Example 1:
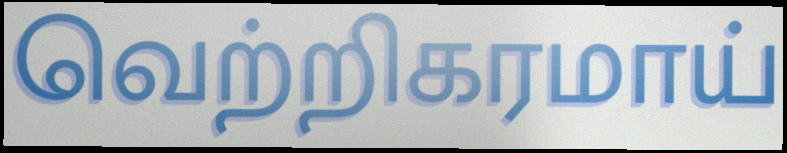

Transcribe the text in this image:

வெற்றிகரமாய்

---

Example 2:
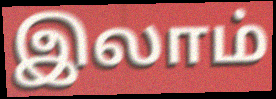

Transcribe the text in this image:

இலாம்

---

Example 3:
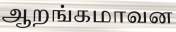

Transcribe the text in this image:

ஆறங்கமாவன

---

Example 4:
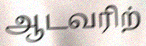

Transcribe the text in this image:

ஆடவரிற்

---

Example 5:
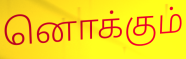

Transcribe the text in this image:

னொக்கும்